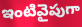
ఇంటివైపుగా